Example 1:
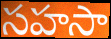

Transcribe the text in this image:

సహసా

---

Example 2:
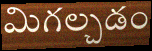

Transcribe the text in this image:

మిగల్చడం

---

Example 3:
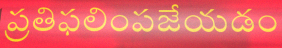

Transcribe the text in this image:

ప్రతిఫలింపజేయడం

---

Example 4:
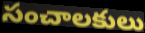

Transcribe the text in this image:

సంచాలకులు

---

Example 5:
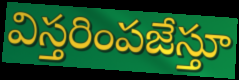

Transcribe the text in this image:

విస్తరింపజేస్తూ